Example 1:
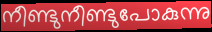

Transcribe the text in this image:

നീണ്ടുനീണ്ടുപോകുന്നു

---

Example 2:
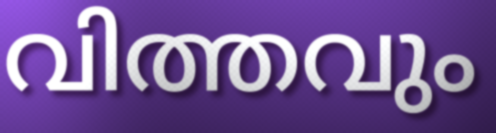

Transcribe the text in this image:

വിത്തവും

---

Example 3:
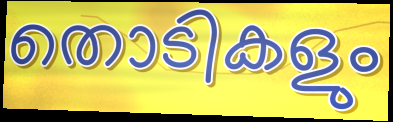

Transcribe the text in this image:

തൊടികളും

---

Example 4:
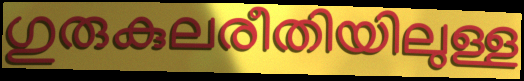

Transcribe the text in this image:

ഗുരുകുലരീതിയിലുള്ള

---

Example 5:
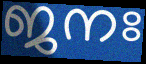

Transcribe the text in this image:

ജനഃ